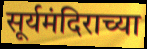
सूर्यमंदिराच्या